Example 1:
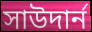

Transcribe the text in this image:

সাউদার্ন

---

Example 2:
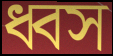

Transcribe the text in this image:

ধ্বস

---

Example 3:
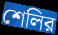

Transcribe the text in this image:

শেলির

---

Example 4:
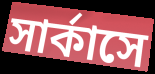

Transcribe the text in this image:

সার্কাসে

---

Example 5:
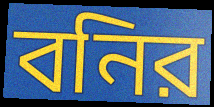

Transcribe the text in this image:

বনির